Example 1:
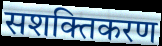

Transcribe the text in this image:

सशक्‍तिकरण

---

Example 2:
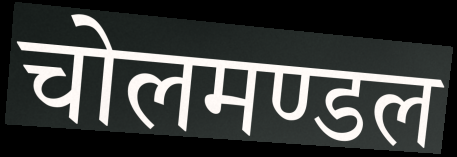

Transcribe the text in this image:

चोलमण्डल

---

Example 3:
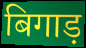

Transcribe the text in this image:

बिगाड़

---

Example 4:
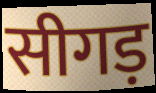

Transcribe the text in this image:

सीगड़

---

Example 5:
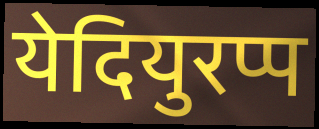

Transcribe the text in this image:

येदियुरप्प